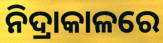
ନିଦ୍ରାକାଳରେ